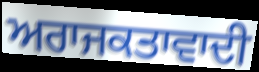
ਅਰਾਜਕਤਾਵਾਦੀ